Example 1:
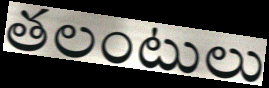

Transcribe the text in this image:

తలంటులు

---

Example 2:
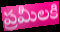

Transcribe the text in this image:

ప్రమీలకి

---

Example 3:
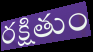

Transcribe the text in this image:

రక్షితుం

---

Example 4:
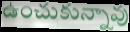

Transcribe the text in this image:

ఉంచుకున్నావు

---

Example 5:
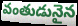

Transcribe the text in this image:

వంతుడునైన